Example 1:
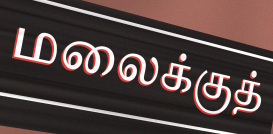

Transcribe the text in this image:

மலைக்குத்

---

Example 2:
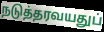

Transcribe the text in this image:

நடுத்தரவயதுப்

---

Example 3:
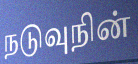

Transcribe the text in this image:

நடுவுநின்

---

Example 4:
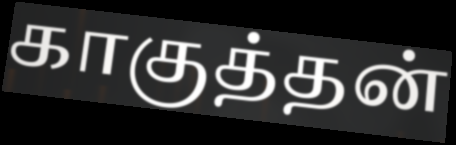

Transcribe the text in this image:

காகுத்தன்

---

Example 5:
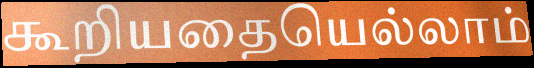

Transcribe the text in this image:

கூறியதையெல்லாம்